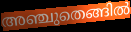
അഞ്ചുതെങ്ങിൽ